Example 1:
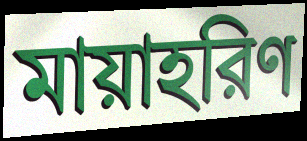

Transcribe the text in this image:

মায়াহরিণ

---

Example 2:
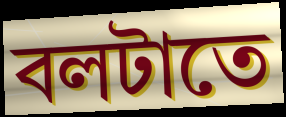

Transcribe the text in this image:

বলটাতে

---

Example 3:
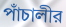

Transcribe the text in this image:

পাঁচালীর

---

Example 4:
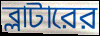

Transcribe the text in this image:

ব্লাটারের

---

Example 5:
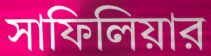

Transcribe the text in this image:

সাফিলিয়ার